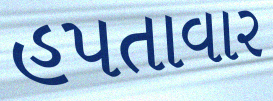
હપતાવાર